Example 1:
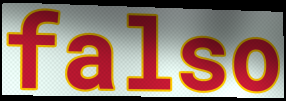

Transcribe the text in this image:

falso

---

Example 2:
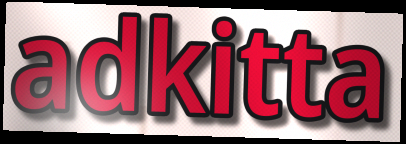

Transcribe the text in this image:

adkitta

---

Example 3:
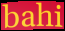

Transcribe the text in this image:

bahi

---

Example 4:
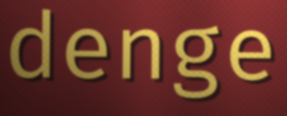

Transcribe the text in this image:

denge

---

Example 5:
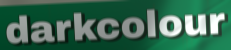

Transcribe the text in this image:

darkcolour